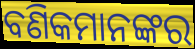
ବଣିକମାନଙ୍କର